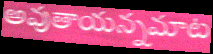
అవుతాయన్నమాట